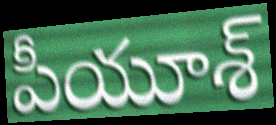
పీయూశ్